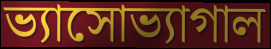
ভ্যাসোভ্যাগাল